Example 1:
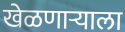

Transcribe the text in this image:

खेळणाऱ्याला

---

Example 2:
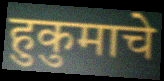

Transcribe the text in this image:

हुकुमाचे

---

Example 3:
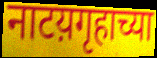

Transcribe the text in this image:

नाटय़गृहाच्या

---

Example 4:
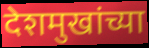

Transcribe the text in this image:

देशमुखांच्या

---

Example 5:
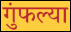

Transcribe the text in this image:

गुंफल्या